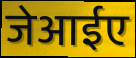
जेआईए